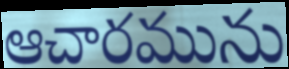
ఆచారమును